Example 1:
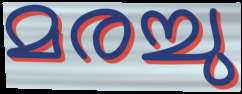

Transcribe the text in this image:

മരച്ചു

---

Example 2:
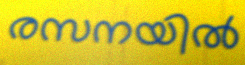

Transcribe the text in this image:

രസനയിൽ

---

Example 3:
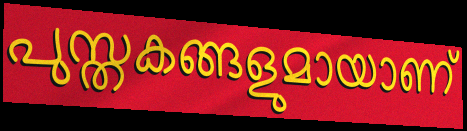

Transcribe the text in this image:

പുസ്തകങ്ങളുമായാണ്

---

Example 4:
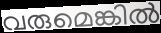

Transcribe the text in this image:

വരുമെങ്കിൽ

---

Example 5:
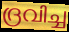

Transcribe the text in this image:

ദ്രവിച്ച